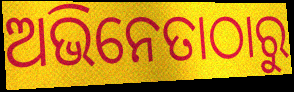
ଅଭିନେତାଠାରୁ